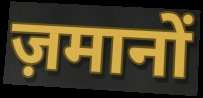
ज़मानों